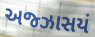
અજ્ઝાસયં